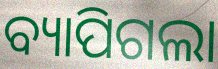
ବ୍ୟାପିଗଲା